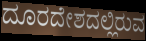
ದೂರದೇಶದಲ್ಲಿರುವ